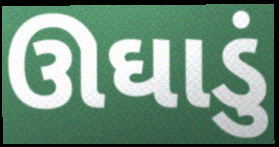
ઊઘાડું